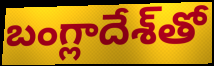
బంగ్లాదేశ్‌తో